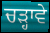
ਚੜ੍ਹਾਵੇ